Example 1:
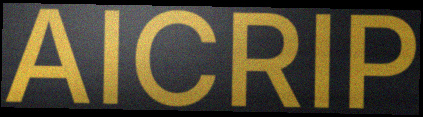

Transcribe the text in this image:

AICRIP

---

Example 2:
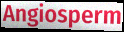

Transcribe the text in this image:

Angiosperm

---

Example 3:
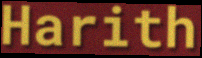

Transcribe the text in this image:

Harith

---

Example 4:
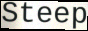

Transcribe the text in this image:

Steep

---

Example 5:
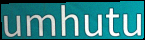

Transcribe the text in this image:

umhutu